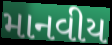
માનવીય